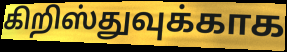
கிறிஸ்துவுக்காக